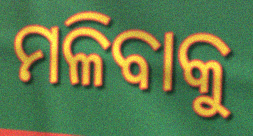
ମଳିବାକୁ